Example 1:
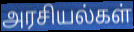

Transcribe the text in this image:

அரசியல்கள்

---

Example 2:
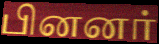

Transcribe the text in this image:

பினனர்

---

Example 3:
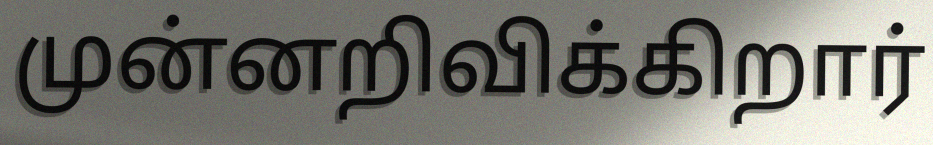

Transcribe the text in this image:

முன்னறிவிக்கிறார்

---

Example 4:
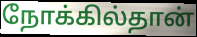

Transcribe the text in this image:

நோக்கில்தான்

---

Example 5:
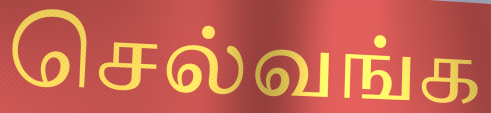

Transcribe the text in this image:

செல்வங்க